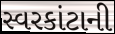
સ્વરકાંટાની